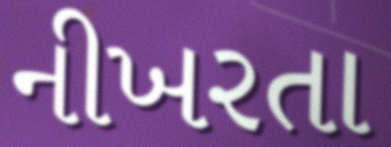
નીખરતા